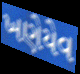
ખણેયેવ